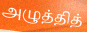
அழுத்தித்